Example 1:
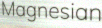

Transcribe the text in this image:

Magnesian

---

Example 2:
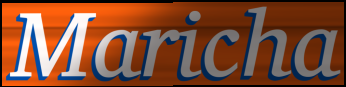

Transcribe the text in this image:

Maricha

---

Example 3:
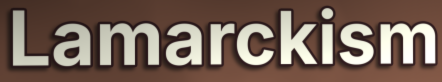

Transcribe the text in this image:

Lamarckism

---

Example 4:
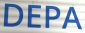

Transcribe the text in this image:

DEPA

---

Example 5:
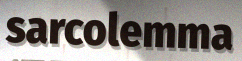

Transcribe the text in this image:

sarcolemma